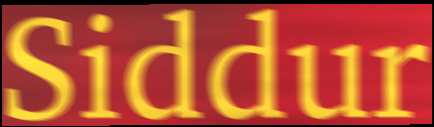
Siddur